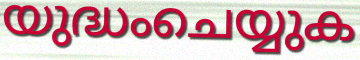
യുദ്ധംചെയ്യുക